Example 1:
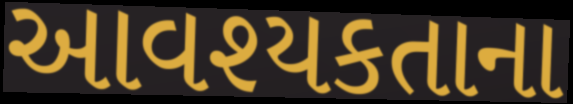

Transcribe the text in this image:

આવશ્યકતાના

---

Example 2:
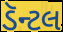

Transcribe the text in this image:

ડૅન્ટલ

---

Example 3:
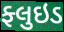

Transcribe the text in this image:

ફ્લુઇડ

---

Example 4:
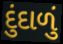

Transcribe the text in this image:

દુંદાળું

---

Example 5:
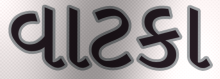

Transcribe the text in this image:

વાટકા